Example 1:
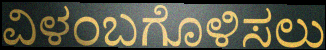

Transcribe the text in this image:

ವಿಳಂಬಗೊಳಿಸಲು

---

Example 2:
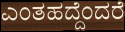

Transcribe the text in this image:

ಎಂತಹದ್ದೆಂದರೆ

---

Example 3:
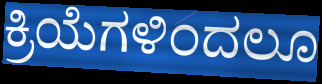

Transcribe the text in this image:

ಕ್ರಿಯೆಗಳಿಂದಲೂ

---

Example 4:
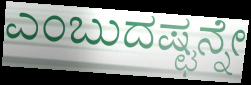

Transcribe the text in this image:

ಎಂಬುದಷ್ಟನ್ನೇ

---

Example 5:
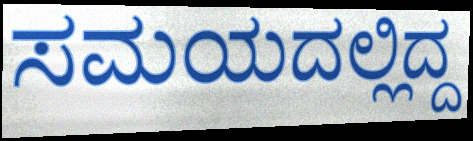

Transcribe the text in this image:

ಸಮಯದಲ್ಲಿದ್ದ